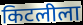
किटलीला